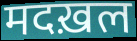
मदख़ल